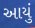
આયું